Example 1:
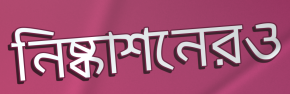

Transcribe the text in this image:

নিষ্কাশনেরও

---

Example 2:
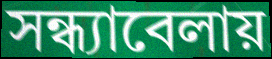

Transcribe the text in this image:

সন্ধ্যাবেলায়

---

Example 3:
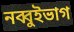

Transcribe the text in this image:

নব্বুইভাগ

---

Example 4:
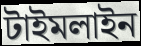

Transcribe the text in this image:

টাইমলাইন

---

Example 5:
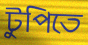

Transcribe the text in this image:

টুপিতে